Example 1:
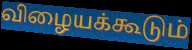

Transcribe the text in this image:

விழையக்கூடும்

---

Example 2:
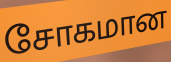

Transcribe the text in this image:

சோகமான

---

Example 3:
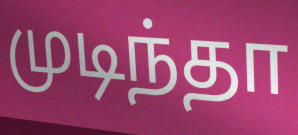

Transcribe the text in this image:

முடிந்தா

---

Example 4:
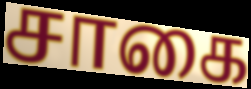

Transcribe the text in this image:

சாகை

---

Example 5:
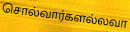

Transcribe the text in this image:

சொல்வார்களல்லவா